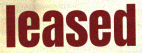
leased